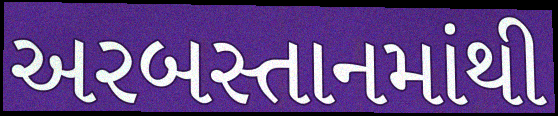
અરબસ્તાનમાંથી